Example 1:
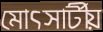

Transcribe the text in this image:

মোৎসার্টীয়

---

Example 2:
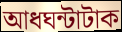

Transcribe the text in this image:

আধঘন্টাটাক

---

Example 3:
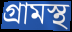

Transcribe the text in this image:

গ্রামস্থ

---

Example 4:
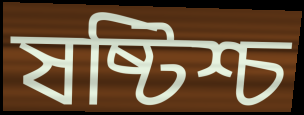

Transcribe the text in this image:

ষষ্টিশ্চ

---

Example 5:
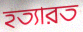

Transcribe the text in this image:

হত্যারত